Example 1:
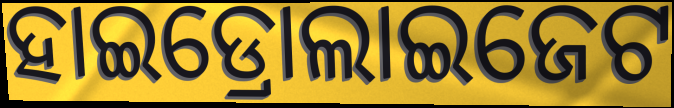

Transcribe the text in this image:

ହାଇଡ୍ରୋଲାଇଜେଟ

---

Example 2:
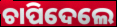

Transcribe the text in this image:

ଚାପିଦେଲେ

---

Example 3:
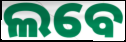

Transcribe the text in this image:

ଲବେ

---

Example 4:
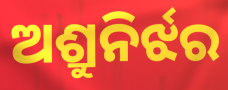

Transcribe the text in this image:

ଅଶ୍ରୁନିର୍ଝର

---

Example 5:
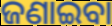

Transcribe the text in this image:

ଜଣାଇବା